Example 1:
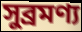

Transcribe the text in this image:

সুব্রমণ্য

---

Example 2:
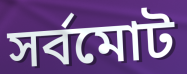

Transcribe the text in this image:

সর্বমোট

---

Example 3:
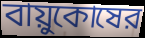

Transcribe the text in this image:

বায়ুকোষের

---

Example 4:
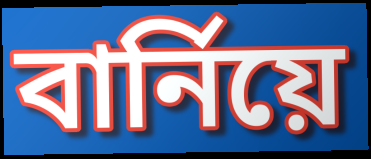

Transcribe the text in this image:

বার্নিয়ে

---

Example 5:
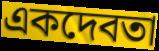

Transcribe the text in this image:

একদেবতা